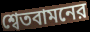
শ্বেতবামনের